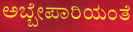
ಅಬ್ಬೇಪಾರಿಯಂತೆ